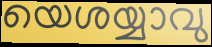
യെശയ്യാവു